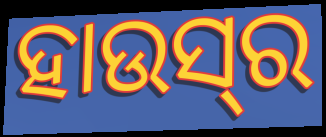
ହାଉସ୍‌ର